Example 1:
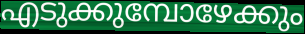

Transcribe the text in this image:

എടുക്കുമ്പോഴേക്കും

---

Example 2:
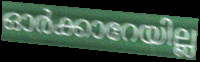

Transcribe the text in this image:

ഓർക്കാറേയില്ല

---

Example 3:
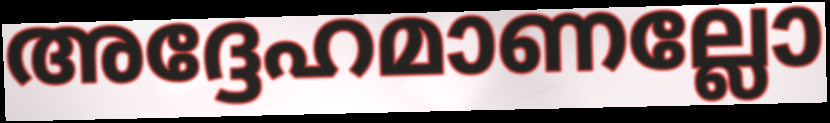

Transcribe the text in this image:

അദ്ദേഹമാണല്ലോ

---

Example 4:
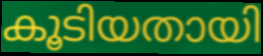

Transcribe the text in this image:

കൂടിയതായി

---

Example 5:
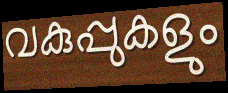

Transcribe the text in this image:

വകുപ്പുകളും